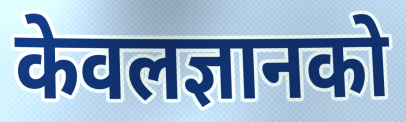
केवलज्ञानको